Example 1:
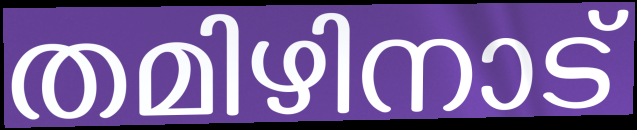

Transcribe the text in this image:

തമിഴിനാട്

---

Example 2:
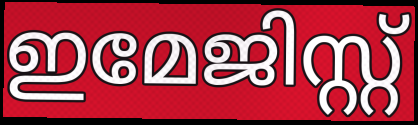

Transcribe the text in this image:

ഇമേജിസ്റ്റ്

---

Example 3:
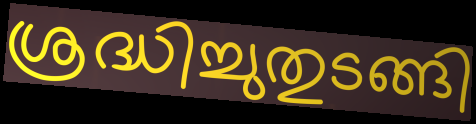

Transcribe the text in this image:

ശ്രദ്ധിച്ചുതുടങ്ങി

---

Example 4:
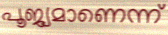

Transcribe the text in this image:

പൂജ്യമാണെന്ന്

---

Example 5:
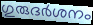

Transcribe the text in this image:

ഗുരുദർശനം